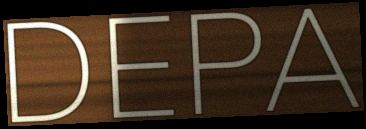
DEPA